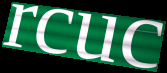
rcuc